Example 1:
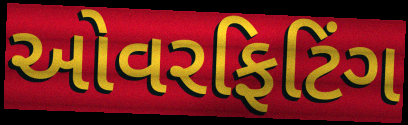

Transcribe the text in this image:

ઓવરફિટિંગ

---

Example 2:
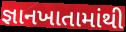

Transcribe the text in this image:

જ્ઞાનખાતામાંથી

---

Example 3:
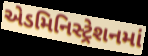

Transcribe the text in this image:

એડમિનિસ્ટ્રેશનમાં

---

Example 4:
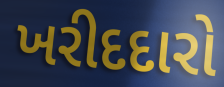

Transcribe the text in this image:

ખરીદદારો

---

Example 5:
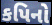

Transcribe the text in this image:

કપિનો